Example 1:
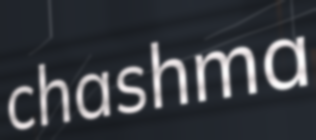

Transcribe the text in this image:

chashma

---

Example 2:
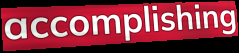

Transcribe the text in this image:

accomplishing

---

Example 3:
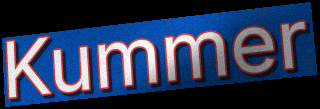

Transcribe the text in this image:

Kummer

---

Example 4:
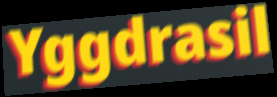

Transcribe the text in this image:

Yggdrasil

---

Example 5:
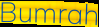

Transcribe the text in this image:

Bumrah